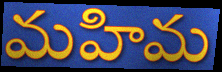
మహిమ